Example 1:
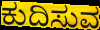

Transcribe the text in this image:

ಕುದಿಸುವ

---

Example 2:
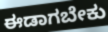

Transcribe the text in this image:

ಈಡಾಗಬೇಕು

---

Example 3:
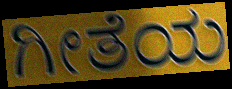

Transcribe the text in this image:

ಗೀತೆಯ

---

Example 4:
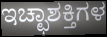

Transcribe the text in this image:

ಇಚ್ಛಾಶಕ್ತಿಗಳ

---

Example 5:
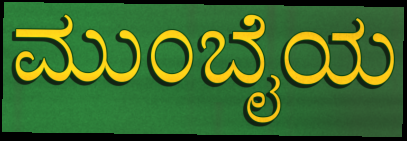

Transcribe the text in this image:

ಮುಂಬೈಯ